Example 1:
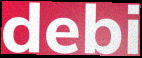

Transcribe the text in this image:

debi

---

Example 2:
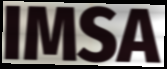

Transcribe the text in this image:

IMSA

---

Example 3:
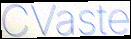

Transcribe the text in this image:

CVaste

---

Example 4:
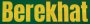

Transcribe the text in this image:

Berekhat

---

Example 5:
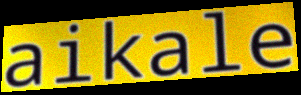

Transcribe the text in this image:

aikale